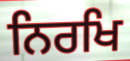
ਨਿਰਖਿ